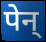
पेन्